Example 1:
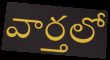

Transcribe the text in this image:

వార్తలో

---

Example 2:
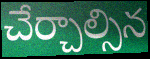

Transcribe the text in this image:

చేర్చాల్సిన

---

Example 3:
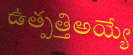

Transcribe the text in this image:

ఉత్పత్తిఅయ్యే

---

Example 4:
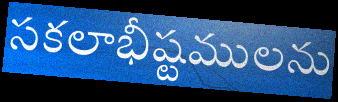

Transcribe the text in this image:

సకలాభీష్టములను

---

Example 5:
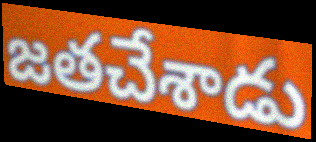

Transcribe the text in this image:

జతచేశాడు